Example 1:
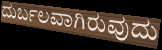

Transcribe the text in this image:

ದುರ್ಬಲವಾಗಿರುವುದು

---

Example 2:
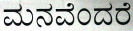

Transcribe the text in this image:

ಮನವೆಂದರೆ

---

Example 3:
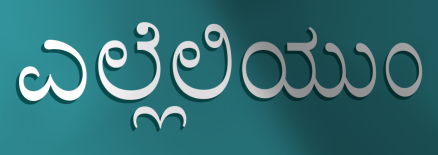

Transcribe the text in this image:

ಎಲ್ಲೆಲಿಯುಂ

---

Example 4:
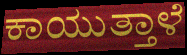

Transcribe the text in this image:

ಕಾಯುತ್ತಾಳೆ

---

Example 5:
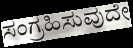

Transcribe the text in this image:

ಸಂಗ್ರಹಿಸುವುದೇ